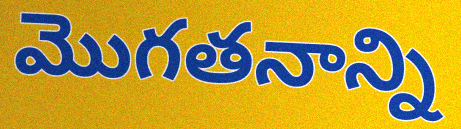
మొగతనాన్ని